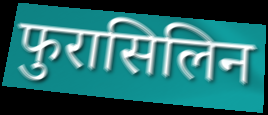
फुरासिलिन